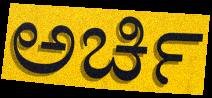
ಅರ್ಚಿ